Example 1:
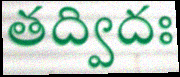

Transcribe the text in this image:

తద్విదః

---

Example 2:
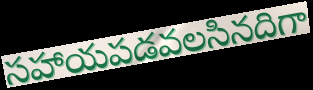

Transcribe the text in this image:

సహాయపడవలసినదిగా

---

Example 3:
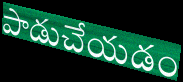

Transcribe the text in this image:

పాడుచేయడం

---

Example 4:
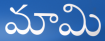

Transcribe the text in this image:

మామి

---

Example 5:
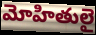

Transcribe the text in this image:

మోహితులై